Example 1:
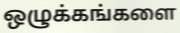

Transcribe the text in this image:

ஒழுக்கங்களை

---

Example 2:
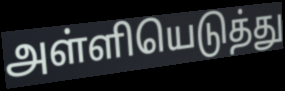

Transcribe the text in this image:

அள்ளியெடுத்து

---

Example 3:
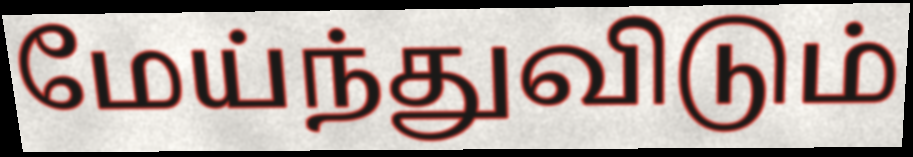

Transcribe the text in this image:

மேய்ந்துவிடும்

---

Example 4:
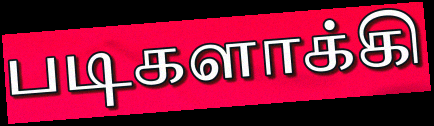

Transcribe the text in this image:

படிகளாக்கி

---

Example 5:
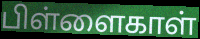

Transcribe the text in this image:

பிள்ளைகாள்